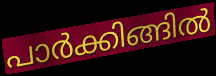
പാർക്കിങ്ങിൽ